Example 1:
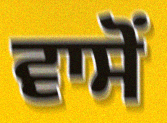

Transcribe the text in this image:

ਵਾਸੋਂ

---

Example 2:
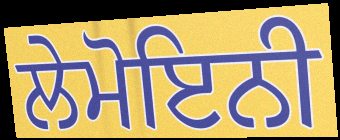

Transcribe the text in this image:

ਲੇਮੋਇਨੀ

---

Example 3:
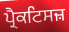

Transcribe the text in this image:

ਪ੍ਰੈਕਟਿਸਜ਼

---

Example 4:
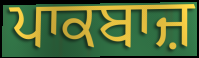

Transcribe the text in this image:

ਪਾਕਬਾਜ਼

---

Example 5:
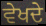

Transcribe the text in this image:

ਵੇਖਦੇ